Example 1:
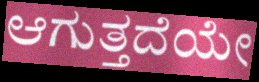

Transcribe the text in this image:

ಆಗುತ್ತದೆಯೇ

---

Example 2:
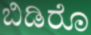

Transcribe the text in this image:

ಬಿಡಿರೊ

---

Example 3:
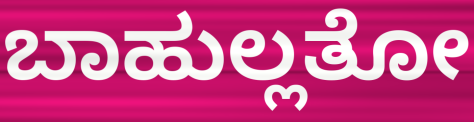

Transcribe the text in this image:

ಬಾಹುಲ್ಲತೋ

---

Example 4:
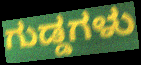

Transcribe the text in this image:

ಗುಡ್ಡಗಳು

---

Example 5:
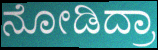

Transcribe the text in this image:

ನೋಡಿದ್ರಾ